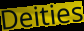
Deities